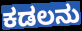
ಕಡಲನು